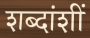
शब्दांशीं